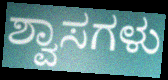
ಶ್ವಾಸಗಳು